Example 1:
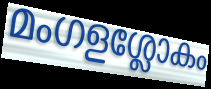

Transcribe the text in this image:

മംഗളശ്ലോകം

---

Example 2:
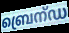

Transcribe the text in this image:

ബ്രെന്ഡ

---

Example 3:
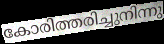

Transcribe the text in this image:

കോരിത്തരിച്ചുനിന്നു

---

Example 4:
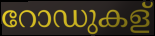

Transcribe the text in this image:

റോഡുകള്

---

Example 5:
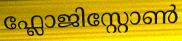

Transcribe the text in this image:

ഫ്ലോജിസ്റ്റോൺ